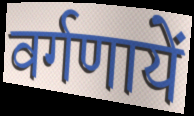
वर्गणायें